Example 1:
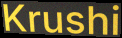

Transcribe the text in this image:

Krushi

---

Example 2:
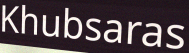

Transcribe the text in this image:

Khubsaras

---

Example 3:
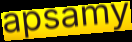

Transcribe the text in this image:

apsamy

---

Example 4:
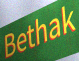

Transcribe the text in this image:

Bethak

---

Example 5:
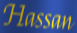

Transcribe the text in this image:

Hassan